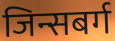
जिन्सबर्ग